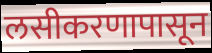
लसीकरणापासून